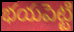
భయపెట్టి